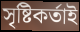
সৃষ্টিকৰ্তাই